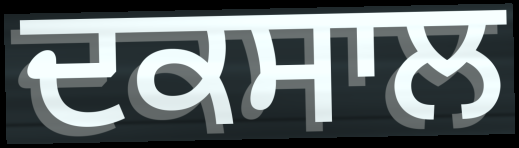
ਦਕਸਾਲ